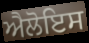
ਐਲੋਇਸ